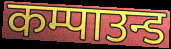
कम्पाउन्ड